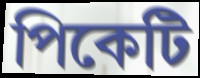
পিকেটি